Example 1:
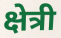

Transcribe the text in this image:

क्षेत्री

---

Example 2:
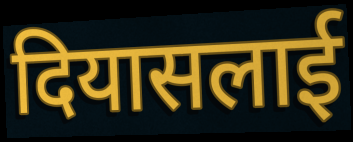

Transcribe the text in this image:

दियासलाई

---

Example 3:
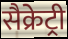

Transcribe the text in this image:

सैक्रेट्री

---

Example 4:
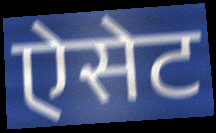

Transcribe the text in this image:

ऐसेट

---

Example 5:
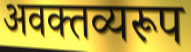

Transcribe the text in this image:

अवक्तव्यरूप